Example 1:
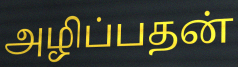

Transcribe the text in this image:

அழிப்பதன்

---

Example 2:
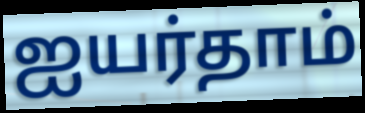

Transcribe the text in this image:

ஐயர்தாம்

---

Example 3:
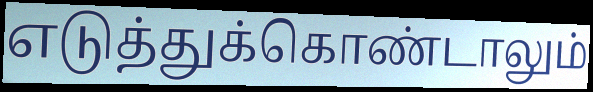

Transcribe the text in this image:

எடுத்துக்கொண்டாலும்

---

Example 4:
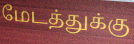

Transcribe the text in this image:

மேடத்துக்கு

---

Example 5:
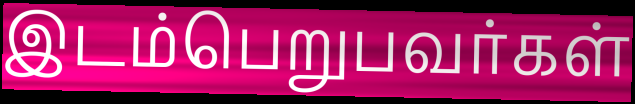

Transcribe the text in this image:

இடம்பெறுபவர்கள்